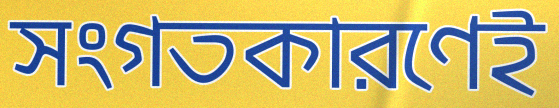
সংগতকারণেই